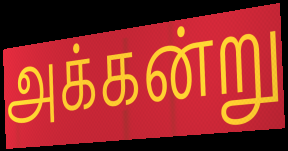
அக்கன்று